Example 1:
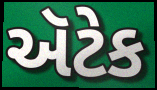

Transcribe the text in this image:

ઍટેક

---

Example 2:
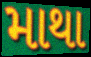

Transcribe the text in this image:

માથા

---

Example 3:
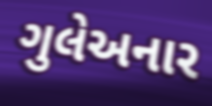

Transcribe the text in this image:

ગુલેઅનાર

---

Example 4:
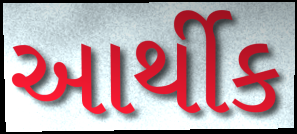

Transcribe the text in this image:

આર્થીક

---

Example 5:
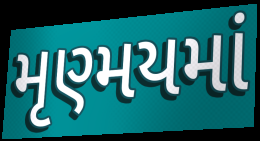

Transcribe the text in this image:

મૃણ્મયમાં